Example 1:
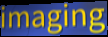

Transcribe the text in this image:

imaging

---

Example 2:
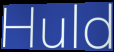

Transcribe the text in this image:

Huld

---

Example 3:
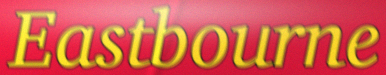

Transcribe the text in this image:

Eastbourne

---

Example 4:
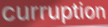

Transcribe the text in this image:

curruption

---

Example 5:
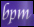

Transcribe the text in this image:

bpm